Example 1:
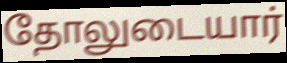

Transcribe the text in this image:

தோலுடையார்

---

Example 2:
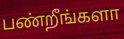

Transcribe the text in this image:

பண்றீங்களா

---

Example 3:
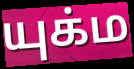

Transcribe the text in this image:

யுக்ம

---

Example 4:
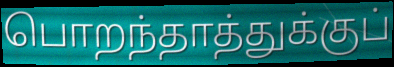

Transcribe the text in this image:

பொறந்தாத்துக்குப்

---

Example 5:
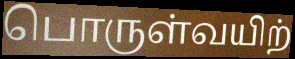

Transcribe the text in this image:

பொருள்வயிற்